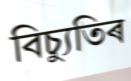
বিচ্যুতিৰ